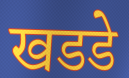
खडडे